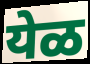
येळ